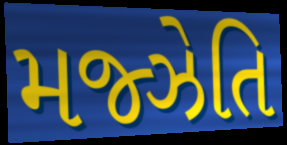
મજ્ઝેતિ